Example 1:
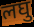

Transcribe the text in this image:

लघु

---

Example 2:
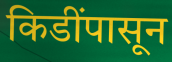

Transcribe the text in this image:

किडींपासून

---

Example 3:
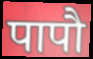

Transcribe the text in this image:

पापौ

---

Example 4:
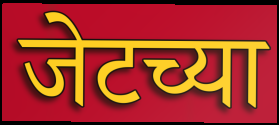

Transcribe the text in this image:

जेटच्या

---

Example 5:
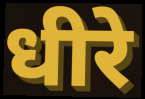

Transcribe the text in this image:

धीरे